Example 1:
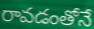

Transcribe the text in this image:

రావడంతోనే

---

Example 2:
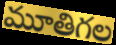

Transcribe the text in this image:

మూతిగల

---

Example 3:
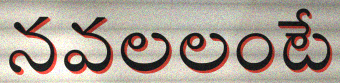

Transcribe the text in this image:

నవలలంటే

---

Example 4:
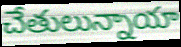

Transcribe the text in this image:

చేతులున్నాయా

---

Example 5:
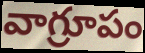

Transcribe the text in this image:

వాగ్రూపం